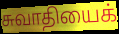
சுவாதியைக்